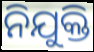
ନିଯୁକ୍ତି